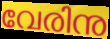
വേരിനു